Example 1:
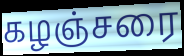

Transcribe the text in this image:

கழஞ்சரை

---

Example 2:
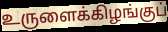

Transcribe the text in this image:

உருளைக்கிழங்குப்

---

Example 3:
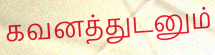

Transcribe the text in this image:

கவனத்துடனும்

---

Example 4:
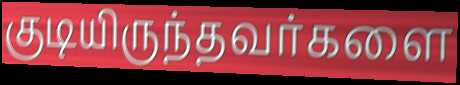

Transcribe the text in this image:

குடியிருந்தவர்களை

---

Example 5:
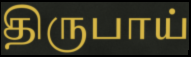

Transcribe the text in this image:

திருபாய்